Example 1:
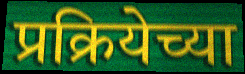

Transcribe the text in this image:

प्रक्रियेच्या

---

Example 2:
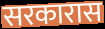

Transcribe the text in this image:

सरकारास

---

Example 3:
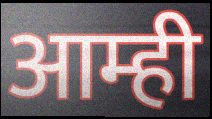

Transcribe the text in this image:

आम्‍ही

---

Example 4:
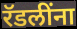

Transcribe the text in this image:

रॅडलींना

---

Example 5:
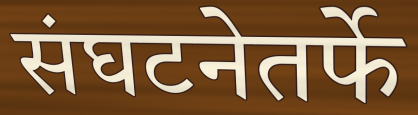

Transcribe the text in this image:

संघटनेतर्फे